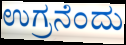
ಉಗ್ರನೆಂದು